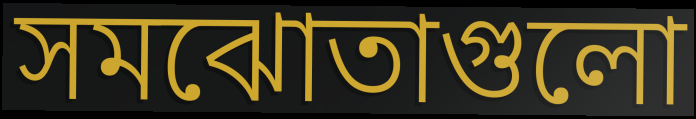
সমঝোতাগুলো